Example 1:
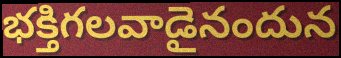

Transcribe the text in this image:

భక్తిగలవాడైనందున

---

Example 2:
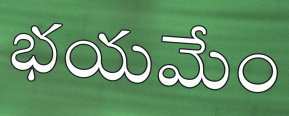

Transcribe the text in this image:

భయమేం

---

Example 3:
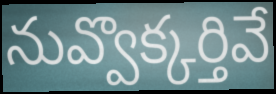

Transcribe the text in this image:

నువ్వొక్కర్తివే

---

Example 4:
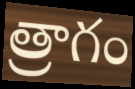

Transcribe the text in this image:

త్రాగం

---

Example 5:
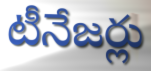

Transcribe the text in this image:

టీనేజర్లు